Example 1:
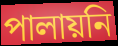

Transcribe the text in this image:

পালায়নি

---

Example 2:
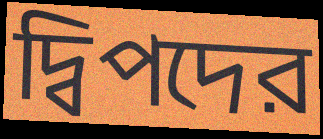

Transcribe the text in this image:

দ্বিপদের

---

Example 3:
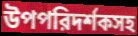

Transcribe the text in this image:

উপপরিদর্শকসহ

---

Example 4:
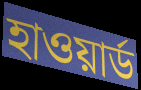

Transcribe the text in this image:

হাওয়ার্ড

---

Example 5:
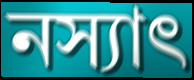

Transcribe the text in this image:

নস্যাৎ